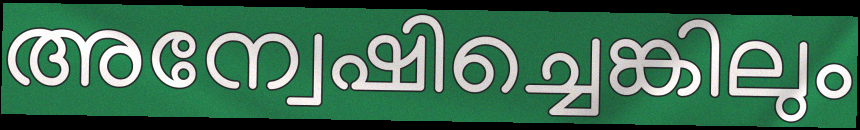
അന്വേഷിച്ചെങ്കിലും